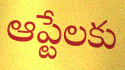
ఆప్టేలకు